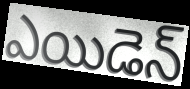
ఎయిడెన్